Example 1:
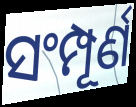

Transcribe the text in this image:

ସଂମ୍ପୂର୍ଣ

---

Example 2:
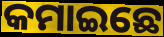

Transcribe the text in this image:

କମାଇଛେ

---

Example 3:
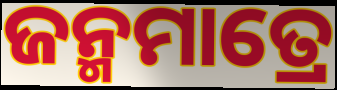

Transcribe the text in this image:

ଜନ୍ମମାତ୍ରେ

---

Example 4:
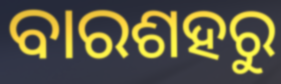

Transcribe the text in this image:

ବାରଶହରୁ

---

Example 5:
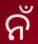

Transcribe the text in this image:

ନଁ